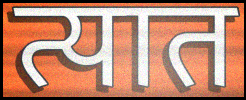
त्यात